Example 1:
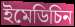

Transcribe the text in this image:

ইমেডিচিন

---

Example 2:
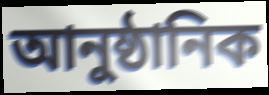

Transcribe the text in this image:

আনুষ্ঠানিক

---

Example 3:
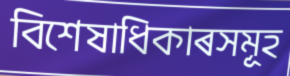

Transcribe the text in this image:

বিশেষাধিকাৰসমূহ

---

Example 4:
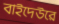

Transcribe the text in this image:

বাইদেউৱে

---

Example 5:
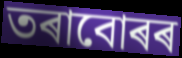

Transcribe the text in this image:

তৰাবোৰৰ